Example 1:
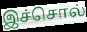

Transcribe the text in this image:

இச்சொல்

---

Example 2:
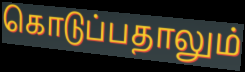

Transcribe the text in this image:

கொடுப்பதாலும்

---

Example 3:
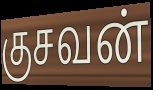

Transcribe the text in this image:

குசவன்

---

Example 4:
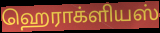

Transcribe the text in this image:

ஹெராக்ளியஸ்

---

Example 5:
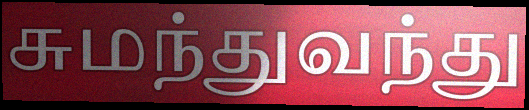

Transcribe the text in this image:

சுமந்துவந்து